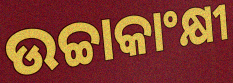
ଉଚ୍ଚାକାଂକ୍ଷୀ